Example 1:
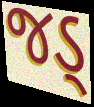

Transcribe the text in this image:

જડ્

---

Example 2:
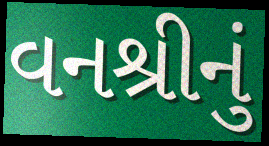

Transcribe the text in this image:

વનશ્રીનું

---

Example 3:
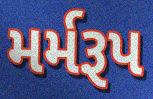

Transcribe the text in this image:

મર્મરૂપ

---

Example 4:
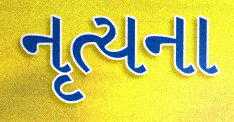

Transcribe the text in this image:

નૃત્યના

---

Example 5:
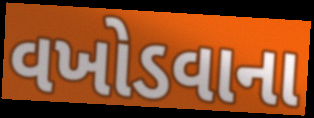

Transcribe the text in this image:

વખોડવાના